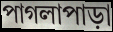
পাগলাপাড়া